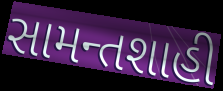
સામન્તશાહી